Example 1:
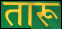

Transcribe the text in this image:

तारू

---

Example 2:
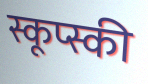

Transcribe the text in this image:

स्कूप्स्की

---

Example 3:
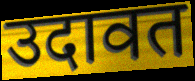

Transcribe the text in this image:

उदावत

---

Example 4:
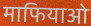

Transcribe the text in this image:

माफियाओ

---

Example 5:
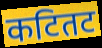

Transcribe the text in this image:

कटितट